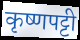
कृष्णपट्टी